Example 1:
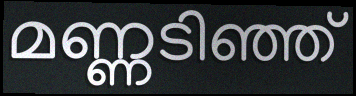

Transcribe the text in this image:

മണ്ണടിഞ്ഞ്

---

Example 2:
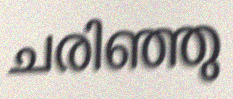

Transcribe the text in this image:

ചരിഞ്ഞു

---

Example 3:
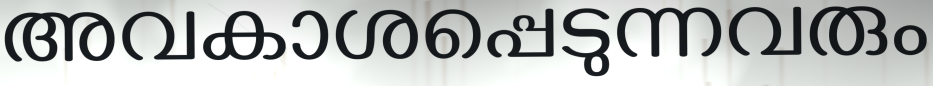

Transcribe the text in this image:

അവകാശപ്പെടുന്നവരും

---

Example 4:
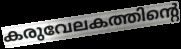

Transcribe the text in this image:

കരുവേലകത്തിന്റെ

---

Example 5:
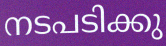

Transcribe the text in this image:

നടപടിക്കു